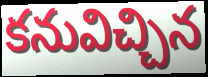
కనువిచ్చిన